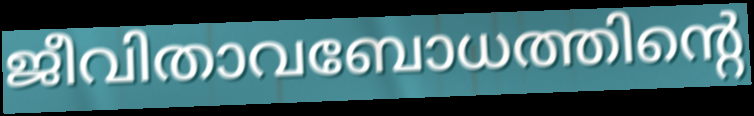
ജീവിതാവബോധത്തിന്റെ